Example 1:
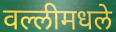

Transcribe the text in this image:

वल्लीमधले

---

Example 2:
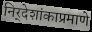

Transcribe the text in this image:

निर्देशांकाप्रमाणे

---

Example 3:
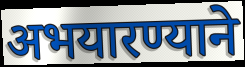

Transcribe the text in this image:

अभयारण्याने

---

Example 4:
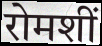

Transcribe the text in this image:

रोमशीं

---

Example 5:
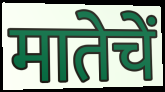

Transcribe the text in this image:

मातेचें